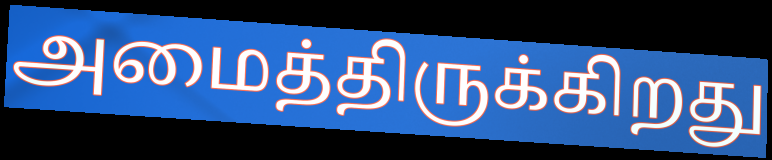
அமைத்திருக்கிறது